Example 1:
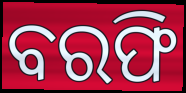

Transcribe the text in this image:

ବରଫି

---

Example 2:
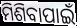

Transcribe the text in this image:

ମିଶିବାପାଇଁ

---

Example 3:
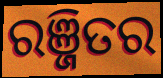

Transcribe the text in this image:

ରଞ୍ଜିତର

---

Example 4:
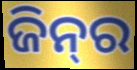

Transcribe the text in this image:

ଜିନ୍‌ର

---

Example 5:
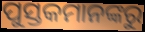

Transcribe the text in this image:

ପୁସ୍ତକମାନଙ୍କରୁ